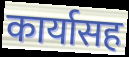
कार्यासह